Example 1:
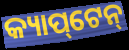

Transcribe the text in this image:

କ୍ୟାପ୍‌ଟେନ୍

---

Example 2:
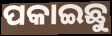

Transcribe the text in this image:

ପକାଇଛୁ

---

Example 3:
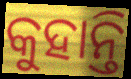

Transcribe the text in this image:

କୁହାନ୍ତି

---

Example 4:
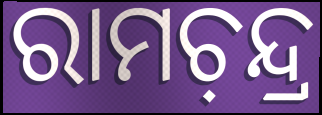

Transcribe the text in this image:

ରାମଚ଼ନ୍ଦ୍ର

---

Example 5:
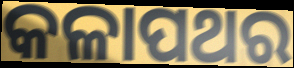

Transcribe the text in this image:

କଳାପଥର